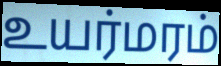
உயர்மரம்